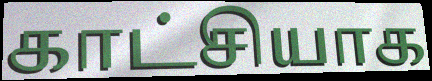
காட்சியாக